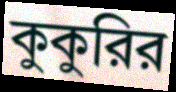
কুকুরির